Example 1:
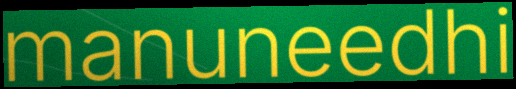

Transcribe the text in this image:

manuneedhi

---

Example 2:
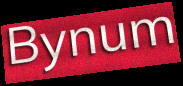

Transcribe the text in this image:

Bynum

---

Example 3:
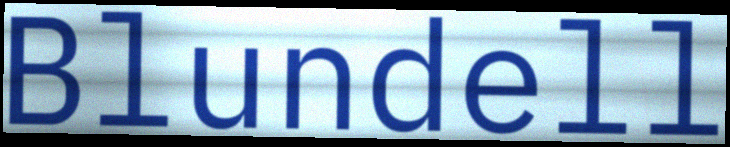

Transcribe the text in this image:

Blundell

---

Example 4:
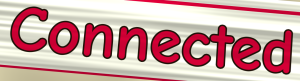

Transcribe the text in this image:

Connected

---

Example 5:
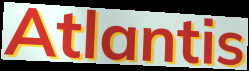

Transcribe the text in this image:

Atlantis